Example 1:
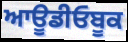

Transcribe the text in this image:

ਆਊਡੀਓਬੂਕ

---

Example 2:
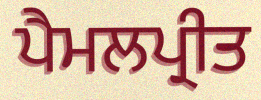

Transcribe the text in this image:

ਪੈਮਲਪ੍ਰੀਤ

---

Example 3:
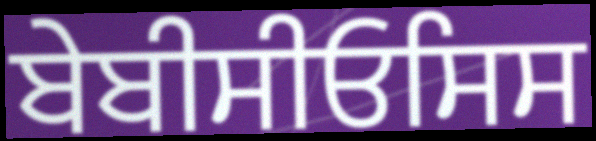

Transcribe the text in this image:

ਬੇਬੀਸੀਓਸਿਸ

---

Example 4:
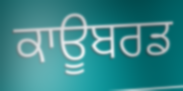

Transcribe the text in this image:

ਕਾਊਬਰਡ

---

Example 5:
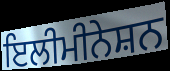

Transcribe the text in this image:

ਇਲੀਮੀਨੇਸ਼ਨ